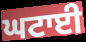
ਘਟਾਈ